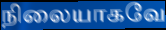
நிலையாகவே